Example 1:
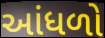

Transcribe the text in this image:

આંધળો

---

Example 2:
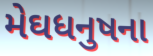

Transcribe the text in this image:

મેઘધનુષના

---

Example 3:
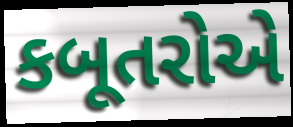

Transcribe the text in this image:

કબૂતરોએ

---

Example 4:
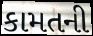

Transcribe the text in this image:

કામતની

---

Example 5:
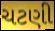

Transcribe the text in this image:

ચટણી